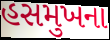
હસમુખના